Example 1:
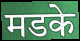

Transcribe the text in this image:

मडके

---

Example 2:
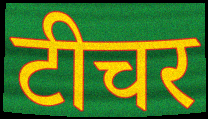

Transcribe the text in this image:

टीचर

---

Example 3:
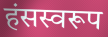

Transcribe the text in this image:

हंसस्वरूप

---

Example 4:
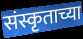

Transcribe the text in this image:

संस्कृताच्या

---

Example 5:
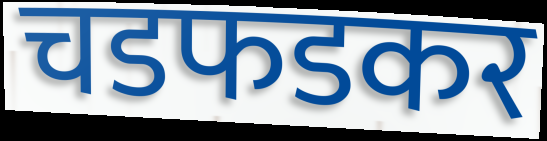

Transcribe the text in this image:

चडफडकर